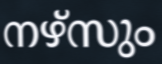
നഴ്സും